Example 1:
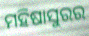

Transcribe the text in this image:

ମହିଷାସୁରର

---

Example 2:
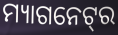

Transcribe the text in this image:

ମ୍ୟାଗନେଟ୍‌ର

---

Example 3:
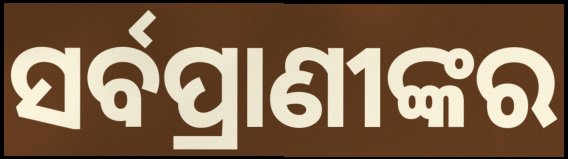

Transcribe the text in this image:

ସର୍ବପ୍ରାଣୀଙ୍କର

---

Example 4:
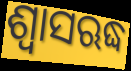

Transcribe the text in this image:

ଶ୍ୱାସଋଦ୍ଧ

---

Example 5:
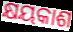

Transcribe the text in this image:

କ୍ଷୟକାଶ